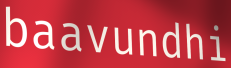
baavundhi